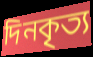
দিনকৃত্য